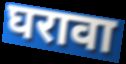
घरावा